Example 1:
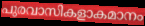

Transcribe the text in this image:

പുരവാസികളാകമാനം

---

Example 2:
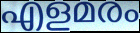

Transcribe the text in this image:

എളമരം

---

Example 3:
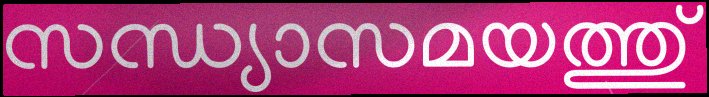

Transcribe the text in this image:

സന്ധ്യാസമയത്തു്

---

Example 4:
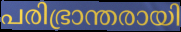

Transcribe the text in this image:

പരിഭ്രാന്തരായി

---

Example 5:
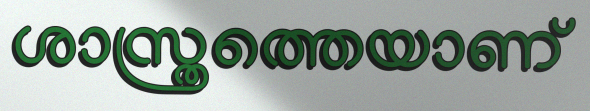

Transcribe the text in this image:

ശാസ്ത്രത്തെയാണ്